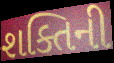
શક્તિની